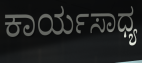
ಕಾರ್ಯಸಾಧ್ಯ